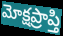
మోక్షప్రాప్తి